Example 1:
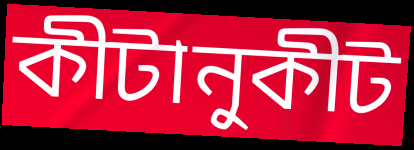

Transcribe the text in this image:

কীটানুকীট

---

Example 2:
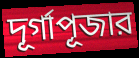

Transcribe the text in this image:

দূর্গাপূজার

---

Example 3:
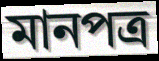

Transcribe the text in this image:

মানপত্র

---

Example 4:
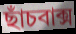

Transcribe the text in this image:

ছাঁচবাক্স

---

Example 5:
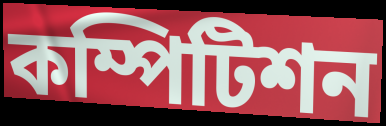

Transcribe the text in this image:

কম্পিটিশন